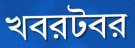
খবরটবর